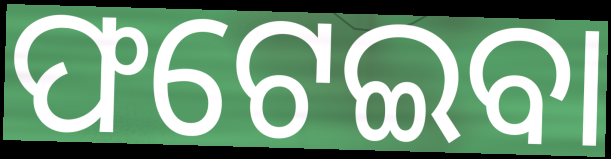
ଫଟେଇବା